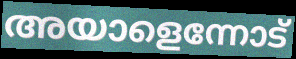
അയാളെന്നോട്